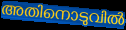
അതിനൊടുവിൽ